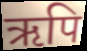
ऋपि